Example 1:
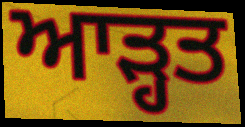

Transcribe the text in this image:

ਆੜ੍ਹਤ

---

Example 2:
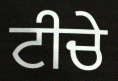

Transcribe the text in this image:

ਟੀਚੇ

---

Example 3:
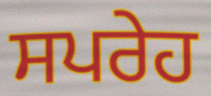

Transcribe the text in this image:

ਸਪਰੇਹ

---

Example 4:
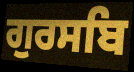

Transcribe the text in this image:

ਗੁਰਸਬਿ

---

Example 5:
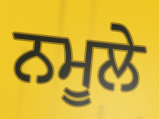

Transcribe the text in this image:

ਨਮੂਲੇ